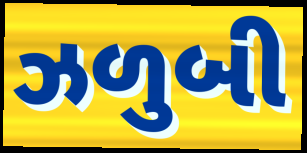
ઝળુબી